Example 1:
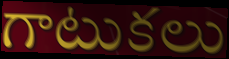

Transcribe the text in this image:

గాటుకలు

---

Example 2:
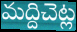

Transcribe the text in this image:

మద్దిచెట్ల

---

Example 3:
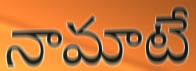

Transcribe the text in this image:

నామాటే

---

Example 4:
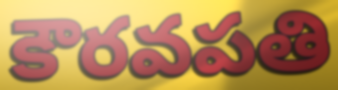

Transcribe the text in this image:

కౌరవపతి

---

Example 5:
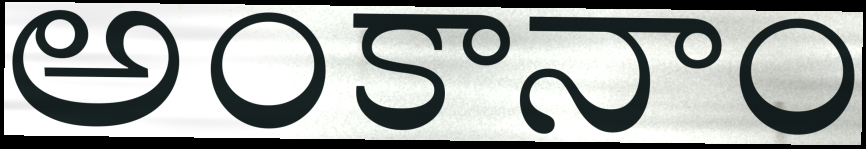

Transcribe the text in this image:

అంకానాం